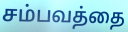
சம்பவத்தை